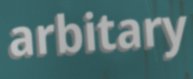
arbitary